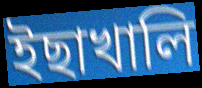
ইছাখালি